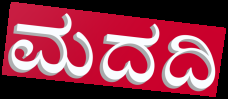
ಮದದಿ